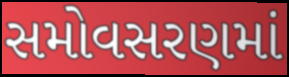
સમોવસરણમાં